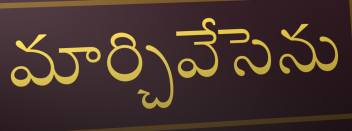
మార్చివేసెను